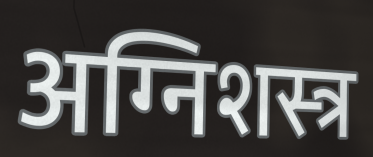
अग्निशस्त्र